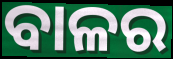
ବାଳର